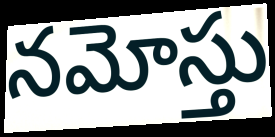
నమోస్తు